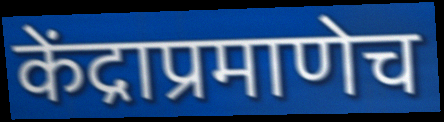
केंद्राप्रमाणेच